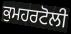
ਕੁਮਹਰਟੋਲੀ